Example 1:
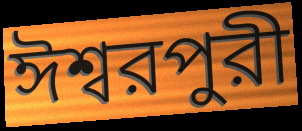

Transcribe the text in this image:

ঈশ্বরপুরী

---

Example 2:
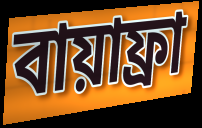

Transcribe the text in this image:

বায়াফ্রা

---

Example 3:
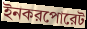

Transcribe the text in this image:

ইনকরপোরেট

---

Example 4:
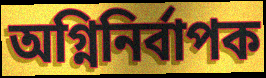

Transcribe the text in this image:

অগ্নিনির্বাপক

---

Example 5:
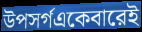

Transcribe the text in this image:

উপসর্গএকেবারেই